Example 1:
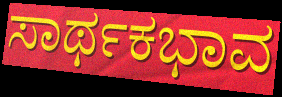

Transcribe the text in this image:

ಸಾರ್ಥಕಭಾವ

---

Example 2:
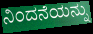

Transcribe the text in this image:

ನಿಂದನೆಯನ್ನು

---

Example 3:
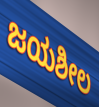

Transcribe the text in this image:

ಜಯಶೀಲ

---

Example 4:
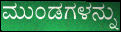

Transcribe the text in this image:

ಮುಂಡಗಳನ್ನು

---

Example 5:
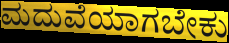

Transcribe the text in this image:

ಮದುವೆಯಾಗಬೇಕು